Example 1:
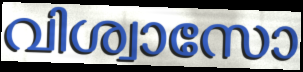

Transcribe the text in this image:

വിശ്വാസോ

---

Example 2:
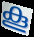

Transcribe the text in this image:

കൂ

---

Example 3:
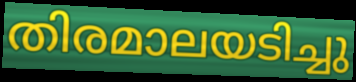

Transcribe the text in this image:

തിരമാലയടിച്ചു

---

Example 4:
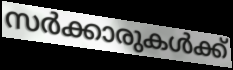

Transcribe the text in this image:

സർക്കാരുകൾക്ക്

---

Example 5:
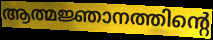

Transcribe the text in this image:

ആത്മജ്ഞാനത്തിന്റെ